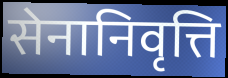
सेनानिवृत्ति